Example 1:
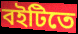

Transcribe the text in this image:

বইটিতে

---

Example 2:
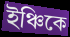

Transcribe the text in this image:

ইঞ্চিকে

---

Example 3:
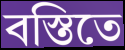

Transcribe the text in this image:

বস্তিতে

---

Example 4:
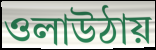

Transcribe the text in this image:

ওলাউঠায়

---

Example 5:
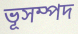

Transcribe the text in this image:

ভূসম্পদ